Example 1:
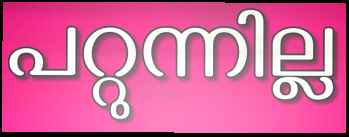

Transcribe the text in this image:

പറ്റുന്നില്ല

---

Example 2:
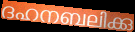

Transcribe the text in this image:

ദഹനബലിക്കു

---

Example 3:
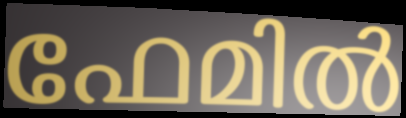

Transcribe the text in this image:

ഫേമിൽ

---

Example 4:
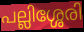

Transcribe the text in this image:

പല്ലിശ്ശേരി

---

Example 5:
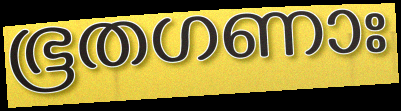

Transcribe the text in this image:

ഭൂതഗണാഃ